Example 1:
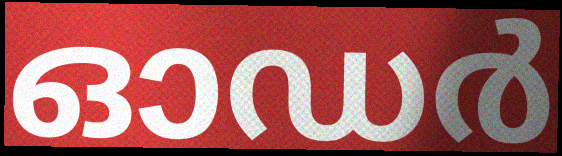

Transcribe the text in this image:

ഓഡർ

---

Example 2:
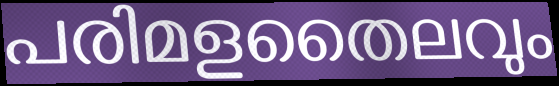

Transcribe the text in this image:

പരിമളതൈലവും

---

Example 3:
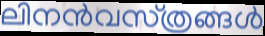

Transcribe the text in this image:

ലിനൻവസ്‌ത്രങ്ങൾ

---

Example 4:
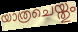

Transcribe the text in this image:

യാത്രചെയ്തും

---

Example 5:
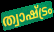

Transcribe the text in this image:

ത്വാഷ്ട്രം